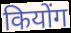
कियोंग